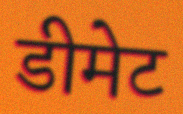
डीमेट